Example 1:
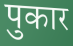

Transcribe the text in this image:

पुकार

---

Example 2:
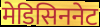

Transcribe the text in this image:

मेडिसिननेट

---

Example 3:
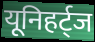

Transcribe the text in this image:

यूनिहर्ट्ज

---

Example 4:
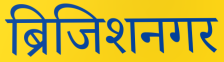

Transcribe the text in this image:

ब्रिजिशनगर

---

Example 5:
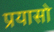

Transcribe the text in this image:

प्रयासो